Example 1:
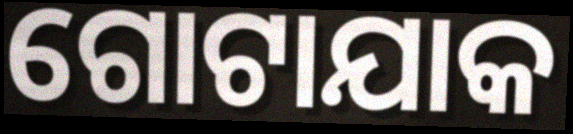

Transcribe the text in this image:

ଗୋଟାଯାକ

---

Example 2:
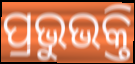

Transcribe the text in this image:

ପ୍ରଭୁଭକ୍ତି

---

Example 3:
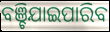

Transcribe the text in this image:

ବଞ୍ଚିଯାଇପାରିବ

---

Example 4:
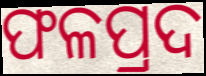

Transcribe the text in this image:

ଫଳପ୍ରଦ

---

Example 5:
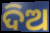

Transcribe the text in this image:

ଦିଅ